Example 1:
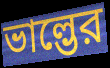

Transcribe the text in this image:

ভাল্ভের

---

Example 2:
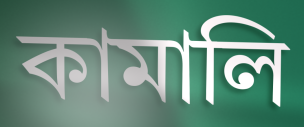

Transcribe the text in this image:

কামালি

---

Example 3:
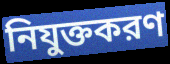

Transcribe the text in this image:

নিযুক্তকরণ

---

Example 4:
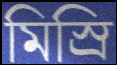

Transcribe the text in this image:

মিস্রি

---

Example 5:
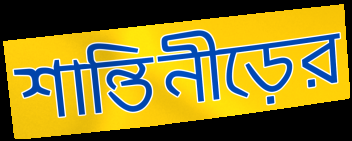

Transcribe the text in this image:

শান্তিনীড়ের